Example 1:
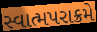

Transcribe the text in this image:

સ્વાત્મપરાક્રમે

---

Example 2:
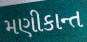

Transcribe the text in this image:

મણીકાન્ત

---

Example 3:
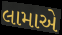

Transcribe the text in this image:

લામાએ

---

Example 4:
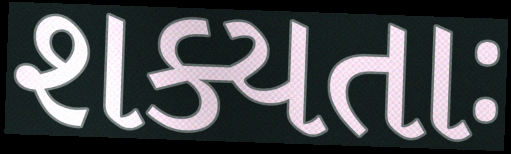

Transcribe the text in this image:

શક્યતાઃ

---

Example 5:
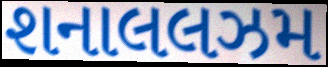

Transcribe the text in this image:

શનાલલઝમ